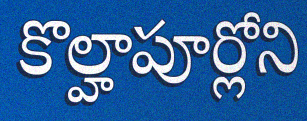
కొల్హాపూర్లోని